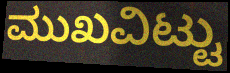
ಮುಖವಿಟ್ಟು